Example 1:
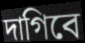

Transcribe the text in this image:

দাগিবে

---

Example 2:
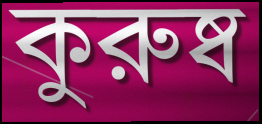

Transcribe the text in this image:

কুরুষ্ব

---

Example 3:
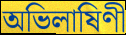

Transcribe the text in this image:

অভিলাষিণী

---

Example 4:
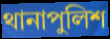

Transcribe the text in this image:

থানাপুলিশ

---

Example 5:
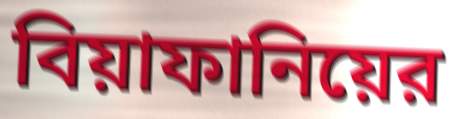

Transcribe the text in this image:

বিয়াফানিয়ের